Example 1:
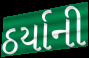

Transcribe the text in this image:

ઠર્યાની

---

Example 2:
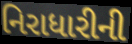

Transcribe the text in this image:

નિરાધારીની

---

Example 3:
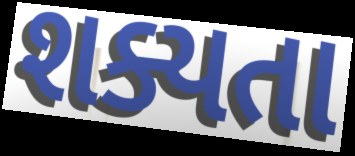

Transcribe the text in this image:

શક્યતા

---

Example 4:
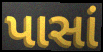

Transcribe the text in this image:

પાસાં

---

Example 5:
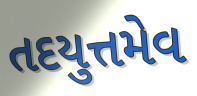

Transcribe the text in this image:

તદયુત્તમેવ